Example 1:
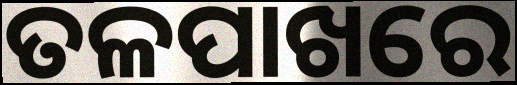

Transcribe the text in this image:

ତଳପାଖରେ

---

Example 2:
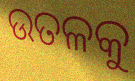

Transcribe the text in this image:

ଉତଳକୁ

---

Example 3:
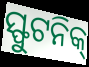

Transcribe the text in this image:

ସ୍ଫୁଟନିକ୍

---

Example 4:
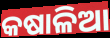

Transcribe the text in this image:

କଷାଳିଆ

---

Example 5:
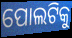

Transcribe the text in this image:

ପୋଲଟିକୁ